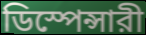
ডিস্পেন্সারী